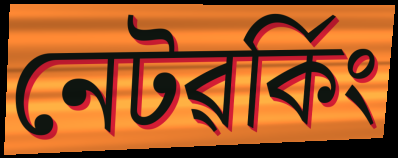
নেটৱৰ্কিং